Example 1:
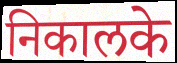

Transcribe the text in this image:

निकालके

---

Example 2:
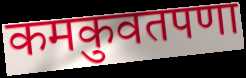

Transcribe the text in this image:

कमकुवतपणा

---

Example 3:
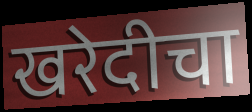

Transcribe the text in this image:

खरेदीचा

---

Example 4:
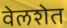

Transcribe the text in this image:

वेलशेत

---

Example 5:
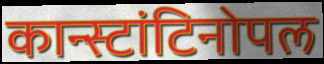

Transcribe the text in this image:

कान्स्टांटिनोपल